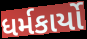
ધર્મકાર્યો